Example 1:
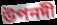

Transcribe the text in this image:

উপনদী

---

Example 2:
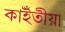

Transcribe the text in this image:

কাইঁতীয়া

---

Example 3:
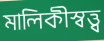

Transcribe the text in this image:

মালিকীস্বত্ত্ব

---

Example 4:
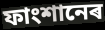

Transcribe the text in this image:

ফাংশানেৰ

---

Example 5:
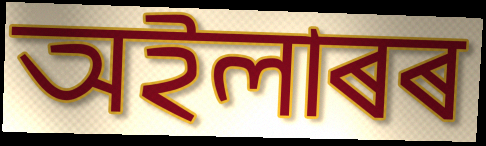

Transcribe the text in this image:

অইলাৰৰ